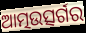
ଆତ୍ମଉତ୍ସର୍ଗର